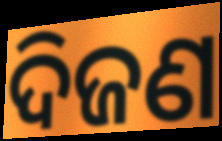
ଦିଜଣ